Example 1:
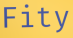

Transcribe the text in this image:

Fity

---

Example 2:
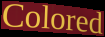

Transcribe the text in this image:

Colored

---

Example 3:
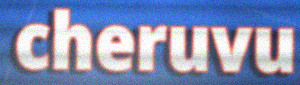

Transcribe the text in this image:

cheruvu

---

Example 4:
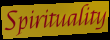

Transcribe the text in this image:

Spirituality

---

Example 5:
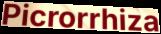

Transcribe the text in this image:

Picrorrhiza